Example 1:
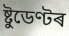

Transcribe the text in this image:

ষ্টুডেণ্টৰ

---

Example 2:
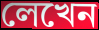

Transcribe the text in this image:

লেখেন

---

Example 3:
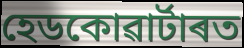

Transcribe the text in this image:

হেডকোৱাৰ্টাৰত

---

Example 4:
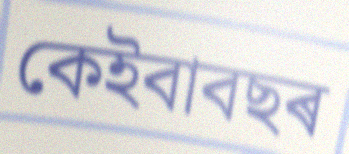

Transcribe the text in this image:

কেইবাবছৰ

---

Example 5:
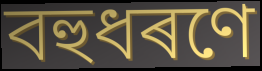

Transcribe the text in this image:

বহুধৰণে